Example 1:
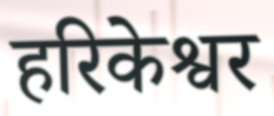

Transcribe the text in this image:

हरिकेश्वर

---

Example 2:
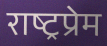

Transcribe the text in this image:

राष्ट्रप्रेम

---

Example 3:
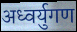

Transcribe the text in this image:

अध्वर्युगण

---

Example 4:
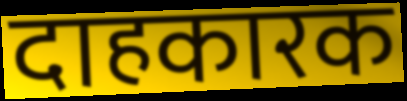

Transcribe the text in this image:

दाहकारक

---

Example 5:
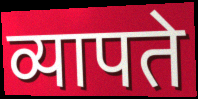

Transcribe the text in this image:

व्यापते